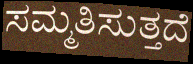
ಸಮ್ಮತಿಸುತ್ತದೆ